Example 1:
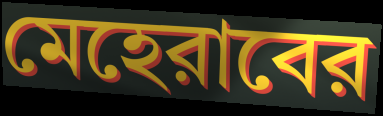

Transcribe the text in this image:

মেহেরাবের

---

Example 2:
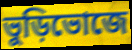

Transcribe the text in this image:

ভুড়িভোজে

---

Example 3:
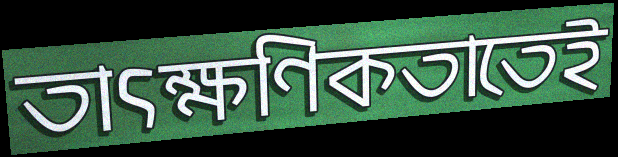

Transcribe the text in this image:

তাৎক্ষণিকতাতেই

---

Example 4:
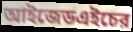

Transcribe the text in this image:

আইজেডএইচের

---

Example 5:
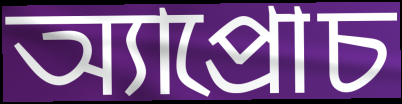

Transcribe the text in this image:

অ্যাপ্রোচ